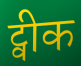
ट्वीक